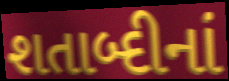
શતાબ્દીનાં